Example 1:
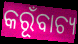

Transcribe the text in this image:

କରୂଁବାଚ୍ୟ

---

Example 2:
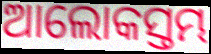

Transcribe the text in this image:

ଆଲୋକସ୍ତମ୍ଭ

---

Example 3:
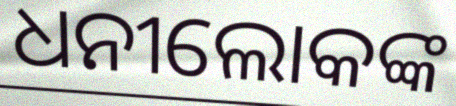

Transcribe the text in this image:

ଧନୀଲୋକଙ୍କ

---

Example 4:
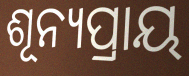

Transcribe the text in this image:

ଶୂନ୍ୟପ୍ରାୟ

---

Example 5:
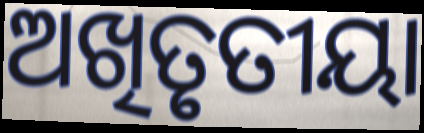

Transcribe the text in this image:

ଅଖିତୃତୀୟା